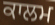
ਕਾਲਮ